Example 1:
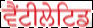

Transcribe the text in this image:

ਵੈਂਟੀਲੇਟਿਡ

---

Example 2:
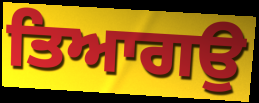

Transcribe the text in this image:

ਤਿਆਗਉ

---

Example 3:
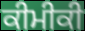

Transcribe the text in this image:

ਕੀਮੀਕੀ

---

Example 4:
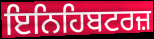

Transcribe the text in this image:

ਇਨਿਹਿਬਟਰਜ਼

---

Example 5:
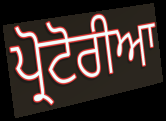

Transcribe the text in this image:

ਪ੍ਰੋਟੋਰੀਆ